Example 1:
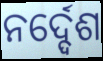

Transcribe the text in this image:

ନର୍ଦ୍ଦେଶ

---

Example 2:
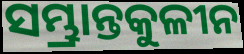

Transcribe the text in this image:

ସମ୍ଭ୍ରାନ୍ତକୁଳୀନ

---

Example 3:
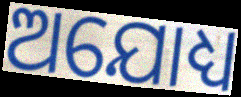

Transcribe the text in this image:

ଅଯୋଧ୍ୟ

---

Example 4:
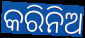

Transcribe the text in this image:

କରିନିଅ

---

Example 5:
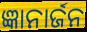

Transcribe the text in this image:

ଜ୍ଞାନାର୍ଜନ